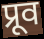
प्रूव